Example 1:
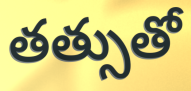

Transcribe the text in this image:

తత్సుతో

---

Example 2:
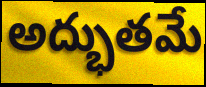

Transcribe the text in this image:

అద్భుతమే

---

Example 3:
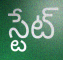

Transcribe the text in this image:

స్టేట్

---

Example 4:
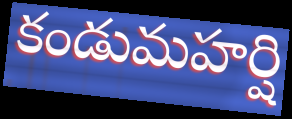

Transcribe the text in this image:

కండుమహర్షి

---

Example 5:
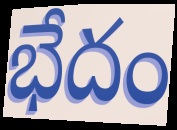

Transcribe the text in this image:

భేదం